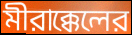
মীরাক্কেলের